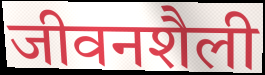
जीवनशैली